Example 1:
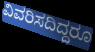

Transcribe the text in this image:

ವಿವರಿಸದಿದ್ದರೂ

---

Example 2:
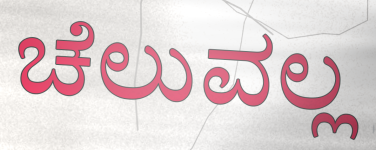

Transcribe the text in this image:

ಚೆಲುವಲ್ಲ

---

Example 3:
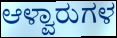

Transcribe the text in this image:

ಆಳ್ವಾರುಗಳ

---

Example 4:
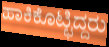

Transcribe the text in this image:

ಹಾಕಿಕೊಟ್ಟಿದ್ದರು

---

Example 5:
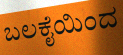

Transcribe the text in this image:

ಬಲಕೈಯಿಂದ